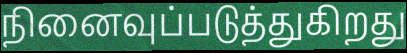
நினைவுப்படுத்துகிறது